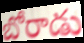
బోరాడు